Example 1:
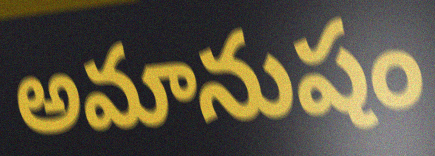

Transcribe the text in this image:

అమానుషం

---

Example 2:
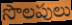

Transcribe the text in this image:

సొలపులు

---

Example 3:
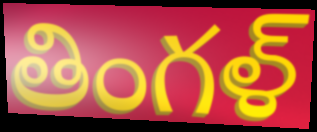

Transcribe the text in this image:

తింగళ్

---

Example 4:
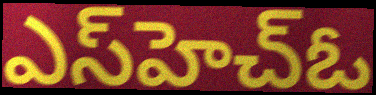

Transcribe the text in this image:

ఎస్‌హెచ్ఓ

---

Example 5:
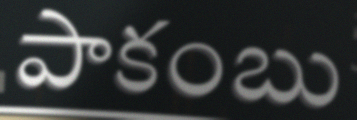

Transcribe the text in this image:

పాకంబు